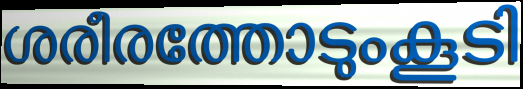
ശരീരത്തോടുംകൂടി